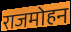
राजमोहन